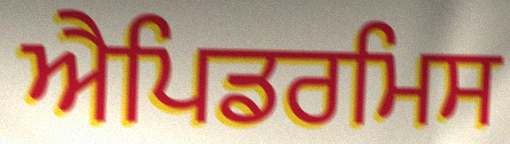
ਐਪਿਡਰਮਿਸ